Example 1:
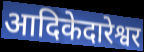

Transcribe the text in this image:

आदिकेदारेश्वर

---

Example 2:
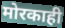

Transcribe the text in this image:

मोरकाही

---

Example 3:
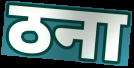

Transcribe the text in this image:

ठना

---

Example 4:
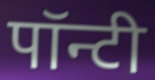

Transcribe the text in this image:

पॉन्टी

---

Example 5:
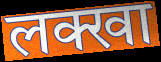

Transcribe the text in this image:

लक्खा